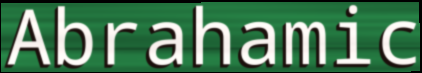
Abrahamic